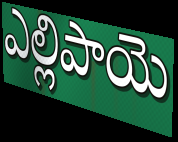
ఎల్లిపాయె